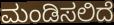
ಮಂಡಿಸಲಿದೆ